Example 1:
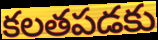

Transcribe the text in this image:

కలతపడకు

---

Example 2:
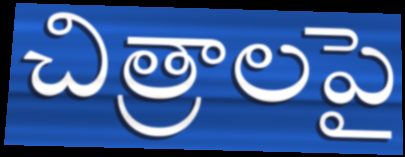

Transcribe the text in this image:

చిత్రాలపై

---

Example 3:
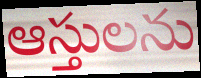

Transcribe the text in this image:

ఆస్తులను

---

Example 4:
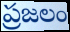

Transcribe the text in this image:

ప్రజలం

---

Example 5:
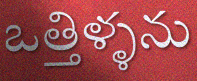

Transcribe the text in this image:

ఒత్తిళ్ళను